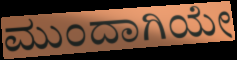
ಮುಂದಾಗಿಯೇ